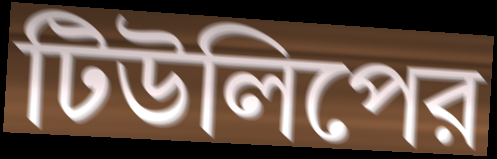
টিউলিপের